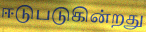
ஈடுபடுகின்றது